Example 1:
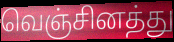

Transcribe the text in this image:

வெஞ்சினத்து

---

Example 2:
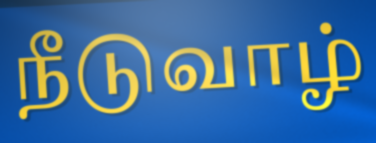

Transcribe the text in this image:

நீடுவாழ்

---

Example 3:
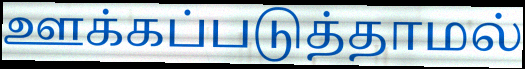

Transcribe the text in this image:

ஊக்கப்படுத்தாமல்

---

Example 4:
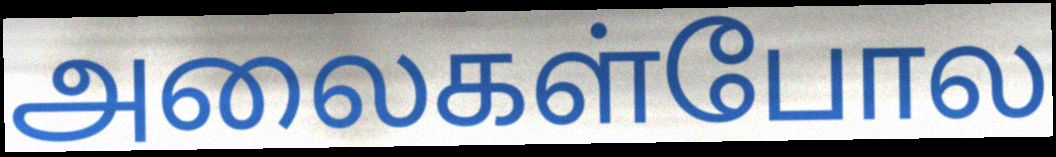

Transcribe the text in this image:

அலைகள்போல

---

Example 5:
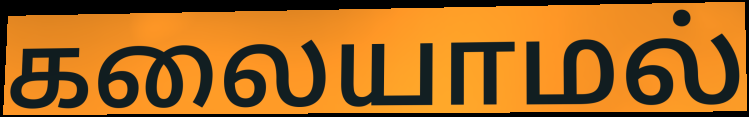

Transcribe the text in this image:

கலையாமல்